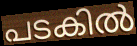
പടകിൽ